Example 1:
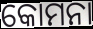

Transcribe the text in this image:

କୋମନା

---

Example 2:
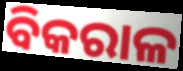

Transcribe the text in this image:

ବିକରାଳ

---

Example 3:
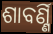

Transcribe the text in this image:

ଶାବର୍ଣ୍ଣି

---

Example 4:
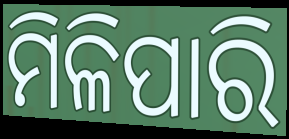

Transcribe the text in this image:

ମିଳିପାରି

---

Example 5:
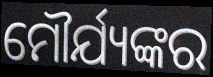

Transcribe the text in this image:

ମୌର୍ଯ୍ୟଙ୍କର